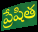
ప్రేషిత